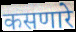
कसणारे